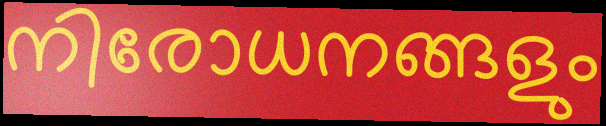
നിരോധനങ്ങളും